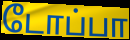
டோப்பா